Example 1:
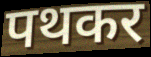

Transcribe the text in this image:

पथकर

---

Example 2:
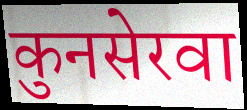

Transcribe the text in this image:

कुनसेरवा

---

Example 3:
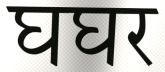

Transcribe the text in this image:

घघर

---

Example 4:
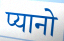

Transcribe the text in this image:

प्यानो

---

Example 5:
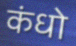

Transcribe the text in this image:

कंधो